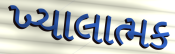
ખ્યાલાત્મક